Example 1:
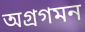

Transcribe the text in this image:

অগ্রগমন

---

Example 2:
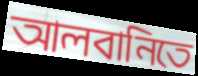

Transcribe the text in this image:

আলবানিতে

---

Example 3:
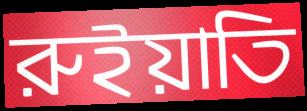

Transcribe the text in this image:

রুইয়াতি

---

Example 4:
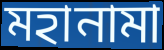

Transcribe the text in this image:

মহানামা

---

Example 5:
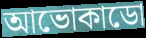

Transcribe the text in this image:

আভোকাডো